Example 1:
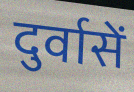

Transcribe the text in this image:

दुर्वासें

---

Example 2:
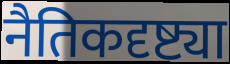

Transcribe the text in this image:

नैतिकदृष्ट्या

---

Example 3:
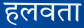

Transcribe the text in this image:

हलवता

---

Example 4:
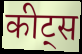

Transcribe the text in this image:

कीट्‌स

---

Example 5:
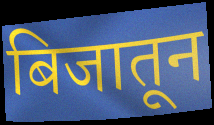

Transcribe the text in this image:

बिजातून